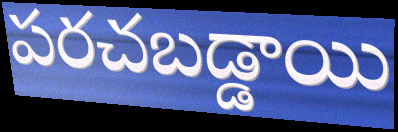
పరచబడ్డాయి